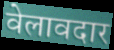
वेलावदार